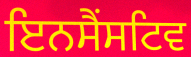
ਇਨਸੈਂਸਟਿਵ